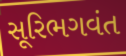
સૂરિભગવંત